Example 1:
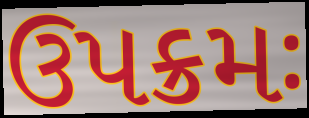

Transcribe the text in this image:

ઉપક્રમઃ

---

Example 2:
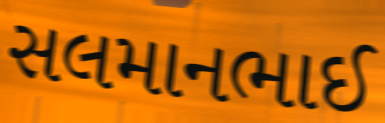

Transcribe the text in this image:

સલમાનભાઈ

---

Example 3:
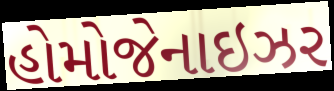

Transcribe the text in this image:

હોમોજેનાઇઝર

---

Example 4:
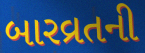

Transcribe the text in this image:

બારવ્રતની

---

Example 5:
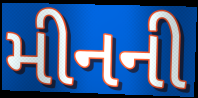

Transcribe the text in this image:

મીનની